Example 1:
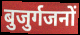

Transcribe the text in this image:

बुजुर्गजनों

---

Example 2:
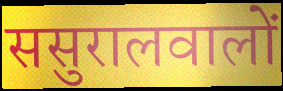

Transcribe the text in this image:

ससुरालवालों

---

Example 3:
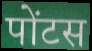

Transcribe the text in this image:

पोंटस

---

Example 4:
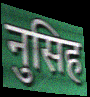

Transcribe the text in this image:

नुसिह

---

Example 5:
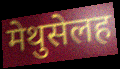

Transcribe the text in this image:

मेथुसेलह